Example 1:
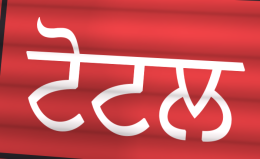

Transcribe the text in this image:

ਟੋਟਲ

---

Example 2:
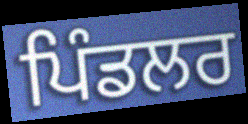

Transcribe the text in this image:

ਪਿੰਡਲਰ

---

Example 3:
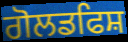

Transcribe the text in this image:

ਗੋਲਡਫਿਸ਼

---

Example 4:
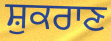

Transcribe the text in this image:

ਸ਼ੁਕਰਾਣ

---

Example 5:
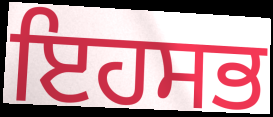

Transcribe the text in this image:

ਇਹਸਭ